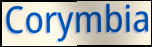
Corymbia